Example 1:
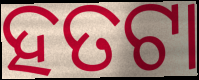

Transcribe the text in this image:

ହତଟା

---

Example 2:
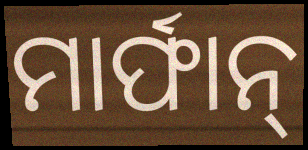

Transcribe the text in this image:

ମାର୍ଫାନ୍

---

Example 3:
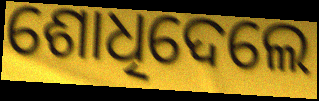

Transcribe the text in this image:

ଶୋଧିଦେଲେ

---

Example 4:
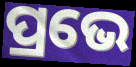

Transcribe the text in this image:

ପ୍ରଭେ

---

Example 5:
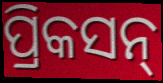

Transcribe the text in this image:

ପ୍ରିକସନ୍